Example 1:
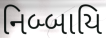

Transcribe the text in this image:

નિબ્બાયિ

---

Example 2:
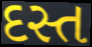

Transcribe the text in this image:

દસ્ત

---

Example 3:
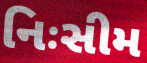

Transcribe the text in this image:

નિઃસીમ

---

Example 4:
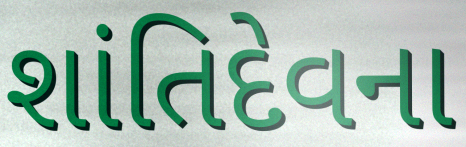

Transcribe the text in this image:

શાંતિદેવના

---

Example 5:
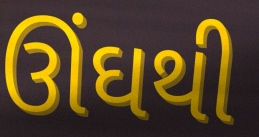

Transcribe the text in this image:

ઊંઘથી